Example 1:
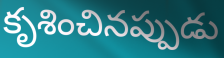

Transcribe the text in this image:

కృశించినప్పుడు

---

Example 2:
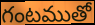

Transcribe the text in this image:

గంటముతో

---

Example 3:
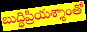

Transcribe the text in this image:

బుద్ధిప్రియశ్శాంతో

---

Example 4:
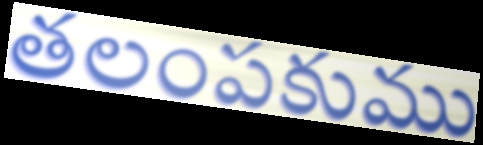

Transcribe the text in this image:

తలంపకుము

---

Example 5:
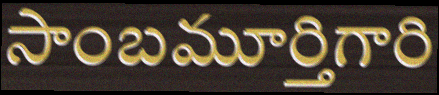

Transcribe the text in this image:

సాంబమూర్తిగారి